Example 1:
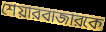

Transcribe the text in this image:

শেয়ারবাজারকে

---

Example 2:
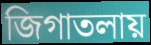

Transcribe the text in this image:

জিগাতলায়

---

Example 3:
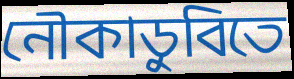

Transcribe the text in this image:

নৌকাডুবিতে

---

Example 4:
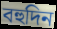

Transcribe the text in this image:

বহুদিন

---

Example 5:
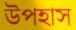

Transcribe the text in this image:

উপহাস